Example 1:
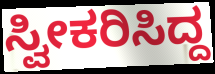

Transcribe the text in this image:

ಸ್ವೀಕರಿಸಿದ್ದ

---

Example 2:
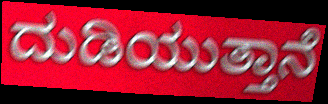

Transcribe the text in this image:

ದುಡಿಯುತ್ತಾನೆ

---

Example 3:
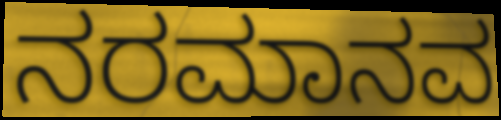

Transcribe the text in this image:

ನರಮಾನವ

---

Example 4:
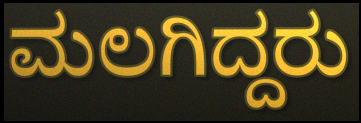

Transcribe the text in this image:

ಮಲಗಿದ್ದರು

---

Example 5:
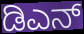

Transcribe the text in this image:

ಡಿಎನ್